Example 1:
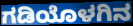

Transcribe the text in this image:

ಗಡಿಯೊಳಗಿನ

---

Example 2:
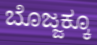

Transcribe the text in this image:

ಬೊಜ್ಜಕ್ಕೂ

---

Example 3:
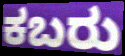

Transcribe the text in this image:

ಕಬರು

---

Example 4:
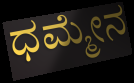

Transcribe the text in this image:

ಧಮ್ಮೇನ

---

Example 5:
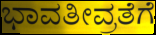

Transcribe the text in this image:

ಭಾವತೀವ್ರತೆಗೆ